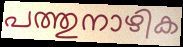
പത്തുനാഴിക